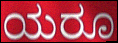
ಯರೂ